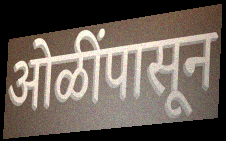
ओळींपासून